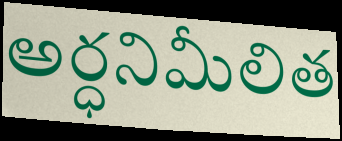
అర్ధనిమీలిత